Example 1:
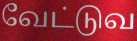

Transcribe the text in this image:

வேட்டுவ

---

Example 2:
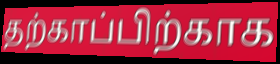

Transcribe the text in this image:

தற்காப்பிற்காக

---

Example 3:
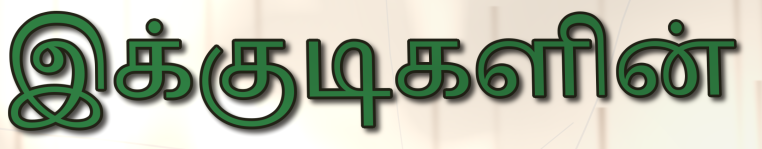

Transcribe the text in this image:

இக்குடிகளின்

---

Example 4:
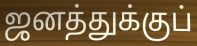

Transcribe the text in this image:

ஜனத்துக்குப்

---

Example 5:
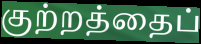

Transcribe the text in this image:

குற்றத்தைப்